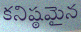
కనిష్ఠమైన